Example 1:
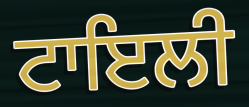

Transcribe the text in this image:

ਟਾਇਲੀ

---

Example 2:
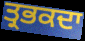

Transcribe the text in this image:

ਤ੍ਰਭਕਦਾ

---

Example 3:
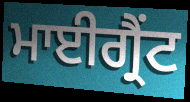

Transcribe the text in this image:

ਮਾਈਗ੍ਰੈਂਟ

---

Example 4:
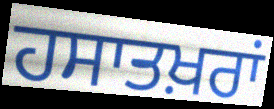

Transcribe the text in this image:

ਹਸਾਤਖ਼ਰਾਂ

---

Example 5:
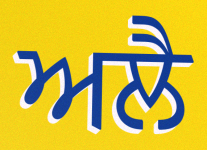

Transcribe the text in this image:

ਅਲੈ